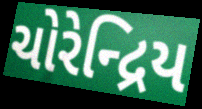
ચોરેન્દ્રિય